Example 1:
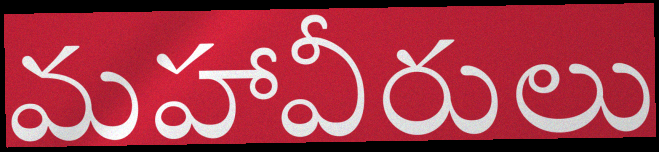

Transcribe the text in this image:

మహావీరులు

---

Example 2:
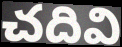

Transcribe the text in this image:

చదివి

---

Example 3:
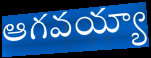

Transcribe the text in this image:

ఆగవయ్యా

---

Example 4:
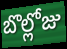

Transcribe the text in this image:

బొల్లోజు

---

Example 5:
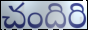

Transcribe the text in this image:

చందిరి